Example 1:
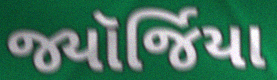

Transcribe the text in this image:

જ્યૉર્જિયા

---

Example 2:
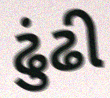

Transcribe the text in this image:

ઢુંઢી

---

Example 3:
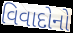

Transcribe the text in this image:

વિવાદોનો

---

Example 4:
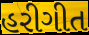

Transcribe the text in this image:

હરીગીત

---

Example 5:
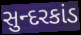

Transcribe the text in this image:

સુન્દરકાંડ